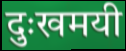
दुःखमयी